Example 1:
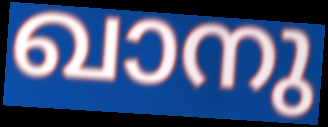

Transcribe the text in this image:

ഖാനു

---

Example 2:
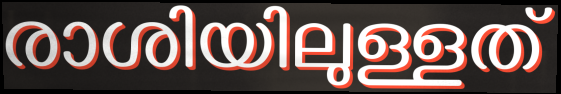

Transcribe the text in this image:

രാശിയിലുള്ളത്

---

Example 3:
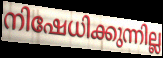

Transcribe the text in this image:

നിഷേധിക്കുന്നില്ല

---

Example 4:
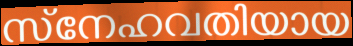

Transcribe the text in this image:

സ്‌നേഹവതിയായ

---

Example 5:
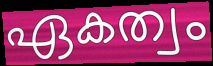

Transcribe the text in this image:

ഏകത്വം